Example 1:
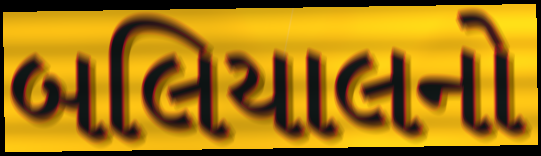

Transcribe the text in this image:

બલિયાલનો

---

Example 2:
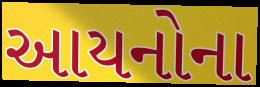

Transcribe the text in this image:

આયનોના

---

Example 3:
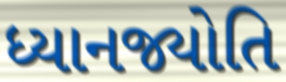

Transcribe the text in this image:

ધ્યાનજ્યોતિ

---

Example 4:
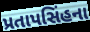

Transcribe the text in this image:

પ્રતાપસિંહના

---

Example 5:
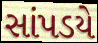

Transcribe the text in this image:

સાંપડયે